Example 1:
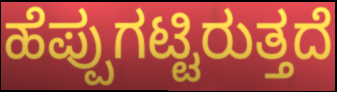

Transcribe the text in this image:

ಹೆಪ್ಪುಗಟ್ಟಿರುತ್ತದೆ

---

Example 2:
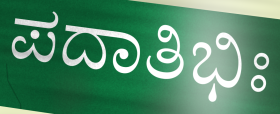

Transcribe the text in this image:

ಪದಾತಿಭಿಃ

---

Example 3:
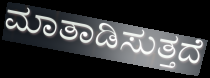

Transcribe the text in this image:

ಮಾತಾಡಿಸುತ್ತದೆ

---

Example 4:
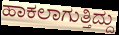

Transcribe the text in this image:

ಹಾಕಲಾಗುತ್ತಿದ್ದು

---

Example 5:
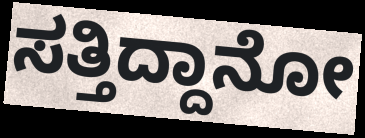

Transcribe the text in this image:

ಸತ್ತಿದ್ದಾನೋ